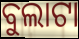
ବୁଲାଟା